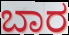
ಬಾರ